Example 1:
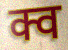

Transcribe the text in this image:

क्व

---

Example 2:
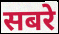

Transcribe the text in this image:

सबरे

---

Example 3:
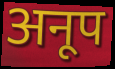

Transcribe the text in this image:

अनूप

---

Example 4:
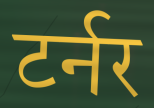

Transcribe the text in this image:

टर्नर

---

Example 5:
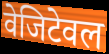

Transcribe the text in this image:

वेजिटेवल